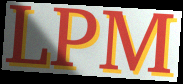
LPM